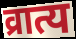
व्रात्य